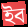
ইব